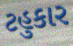
ટહુકાર